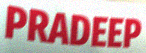
PRADEEP